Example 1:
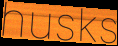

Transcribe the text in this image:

husks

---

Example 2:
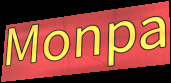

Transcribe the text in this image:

Monpa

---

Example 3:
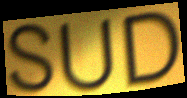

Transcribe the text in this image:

SUD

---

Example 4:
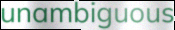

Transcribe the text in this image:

unambiguous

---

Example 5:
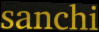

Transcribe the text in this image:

sanchi